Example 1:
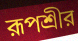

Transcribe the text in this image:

রূপশ্রীর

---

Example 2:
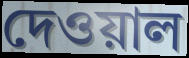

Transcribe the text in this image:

দেওয়াল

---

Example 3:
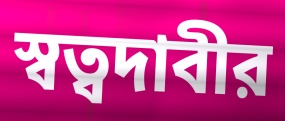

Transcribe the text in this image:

স্বত্বদাবীর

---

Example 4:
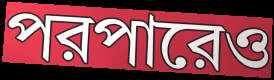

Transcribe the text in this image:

পরপারেও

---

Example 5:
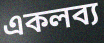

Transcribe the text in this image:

একলব্য